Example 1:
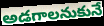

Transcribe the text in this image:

అడగాలనుకునే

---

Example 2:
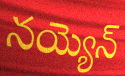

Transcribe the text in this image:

నయ్యెన్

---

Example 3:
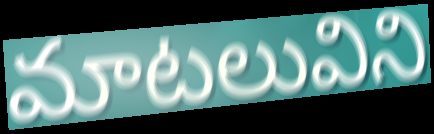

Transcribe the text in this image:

మాటలువిని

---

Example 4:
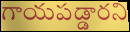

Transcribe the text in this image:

గాయపడ్డారని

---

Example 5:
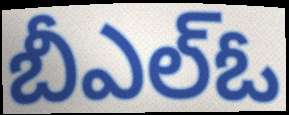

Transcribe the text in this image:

బీఎల్ఓ